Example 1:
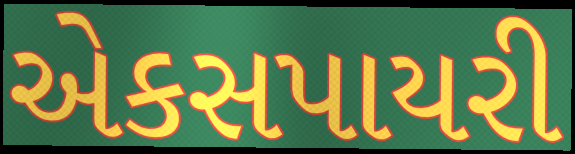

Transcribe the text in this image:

એકસપાયરી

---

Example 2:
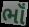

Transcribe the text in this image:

ભૉં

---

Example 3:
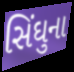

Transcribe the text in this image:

સિંઘુના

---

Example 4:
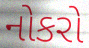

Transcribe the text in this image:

નોકરો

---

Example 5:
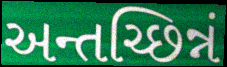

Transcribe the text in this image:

અન્તચ્છિન્નં